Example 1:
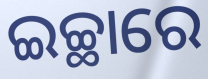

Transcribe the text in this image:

ଇଚ୍ଛାରେ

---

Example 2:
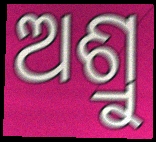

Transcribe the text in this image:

ଅଶ୍ରୁ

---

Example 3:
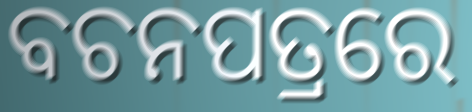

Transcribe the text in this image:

ବଚନପତ୍ରରେ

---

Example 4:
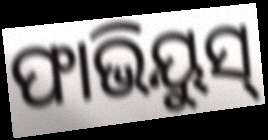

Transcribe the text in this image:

ଫାଭିୟୁସ୍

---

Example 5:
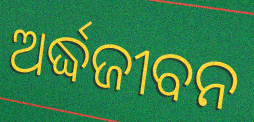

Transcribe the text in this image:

ଅର୍ଦ୍ଧଜୀବନ